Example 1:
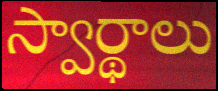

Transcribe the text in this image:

స్వార్థాలు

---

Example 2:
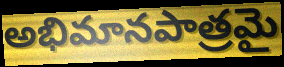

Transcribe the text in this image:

అభిమానపాత్రమై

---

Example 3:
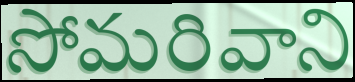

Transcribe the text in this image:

సోమరివాని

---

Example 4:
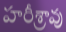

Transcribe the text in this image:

హరీశ్రావు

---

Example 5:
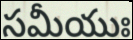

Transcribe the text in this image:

సమీయుః